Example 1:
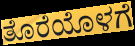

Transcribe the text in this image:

ತೊರೆಯೊಳಗೆ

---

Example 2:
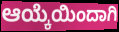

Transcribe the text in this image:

ಆಯ್ಕೆಯಿಂದಾಗಿ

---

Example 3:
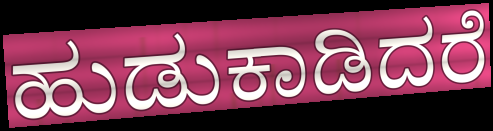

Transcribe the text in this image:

ಹುಡುಕಾಡಿದರೆ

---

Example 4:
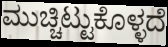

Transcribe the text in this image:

ಮುಚ್ಚಿಟ್ಟುಕೊಳ್ಳದೆ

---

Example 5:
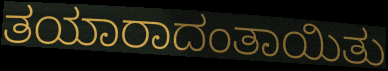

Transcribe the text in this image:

ತಯಾರಾದಂತಾಯಿತು